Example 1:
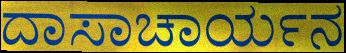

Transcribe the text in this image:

ದಾಸಾಚಾರ್ಯನ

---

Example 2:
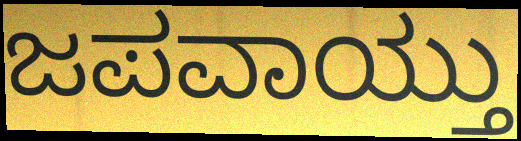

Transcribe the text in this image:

ಜಪವಾಯ್ತು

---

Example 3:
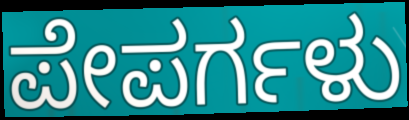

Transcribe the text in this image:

ಪೇಪರ್ಗಳು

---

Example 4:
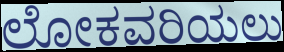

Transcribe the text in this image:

ಲೋಕವರಿಯಲು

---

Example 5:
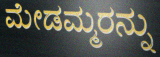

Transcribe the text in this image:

ಮೇಡಮ್ಮರನ್ನು